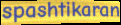
spashtikaran